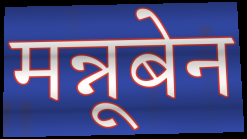
मन्नूबेन